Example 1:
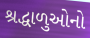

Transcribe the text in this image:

શ્રદ્ધાળુઓનો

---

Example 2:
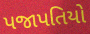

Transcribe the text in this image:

પજાપતિયો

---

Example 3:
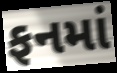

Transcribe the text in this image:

ફનમાં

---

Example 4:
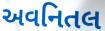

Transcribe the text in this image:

અવનિતલ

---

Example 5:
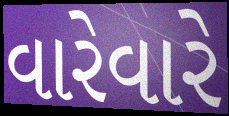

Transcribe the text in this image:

વારેવારે